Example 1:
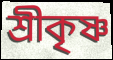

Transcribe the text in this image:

শ্রীকৃষ্ণ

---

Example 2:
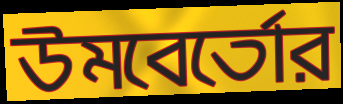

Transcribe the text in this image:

উমবের্তোর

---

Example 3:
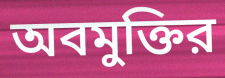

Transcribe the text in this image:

অবমুক্তির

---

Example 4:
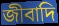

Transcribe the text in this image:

জীবাদি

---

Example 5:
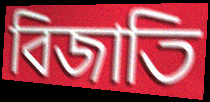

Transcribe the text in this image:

বিজাতি